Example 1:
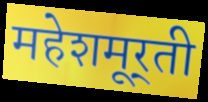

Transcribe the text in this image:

महेशमूर्ती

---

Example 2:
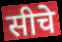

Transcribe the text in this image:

सीचे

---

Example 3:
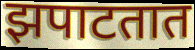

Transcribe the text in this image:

झपाटतात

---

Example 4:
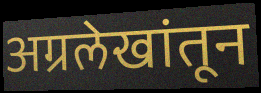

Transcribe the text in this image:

अग्रलेखांतून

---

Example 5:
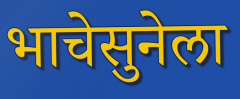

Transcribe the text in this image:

भाचेसुनेला